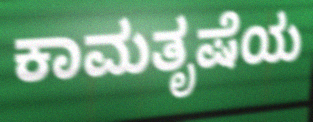
ಕಾಮತೃಷೆಯ